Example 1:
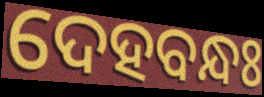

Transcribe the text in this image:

ଦେହବନ୍ଧଃ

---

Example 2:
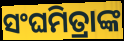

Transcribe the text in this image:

ସଂଘମିତ୍ରାଙ୍କ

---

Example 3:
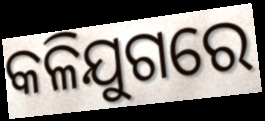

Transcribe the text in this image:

କଳିଯୁଗରେ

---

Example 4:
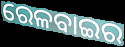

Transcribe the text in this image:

ରେଳବାଇର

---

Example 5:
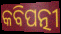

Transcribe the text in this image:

କବିପତ୍ନୀ